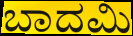
ಬಾದಮಿ